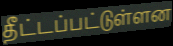
தீட்டப்பட்டுள்ளன